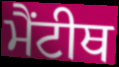
ਮੈਂਟੀਥ